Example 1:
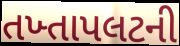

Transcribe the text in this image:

તખ્તાપલટની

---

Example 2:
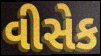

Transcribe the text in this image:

વીસેક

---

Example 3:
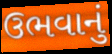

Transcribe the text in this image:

ઉભવાનું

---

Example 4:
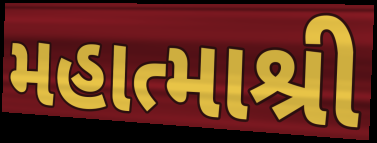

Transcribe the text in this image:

મહાત્માશ્રી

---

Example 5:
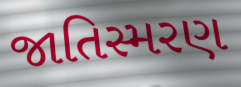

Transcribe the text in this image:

જાતિસ્મરણ